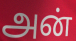
அன்